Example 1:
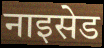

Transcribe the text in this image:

नाइसेड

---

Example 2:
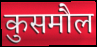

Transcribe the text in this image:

कुसमौल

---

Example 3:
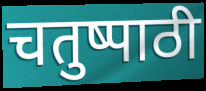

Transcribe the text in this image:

चतुष्पाठी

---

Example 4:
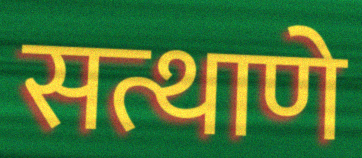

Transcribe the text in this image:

सत्थाणे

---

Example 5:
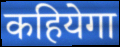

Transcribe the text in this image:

कहियेगा